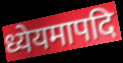
ध्येयमापदि